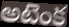
అటెంక